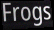
Frogs